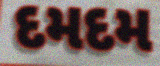
દમદમ